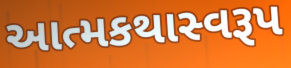
આત્મકથાસ્વરૂપ